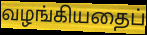
வழங்கியதைப்